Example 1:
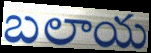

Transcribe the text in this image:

బలాయ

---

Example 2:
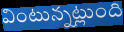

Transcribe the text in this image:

వింటున్నట్లుంది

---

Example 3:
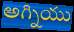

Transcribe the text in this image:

అగ్నియు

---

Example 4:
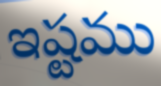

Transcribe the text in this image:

ఇష్టము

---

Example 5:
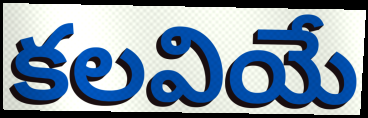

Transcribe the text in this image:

కలవియే